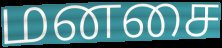
மனசை